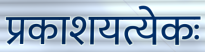
प्रकाशयत्येकः